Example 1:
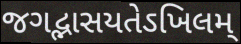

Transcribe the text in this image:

જગદ્ભાસયતેઽખિલમ્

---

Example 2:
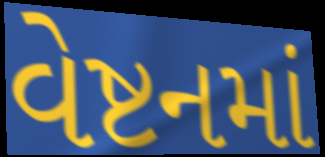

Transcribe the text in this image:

વેષ્ટનમાં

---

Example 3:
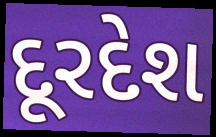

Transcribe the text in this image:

દૂરદેશ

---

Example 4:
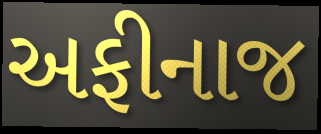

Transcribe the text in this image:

અફીનાજ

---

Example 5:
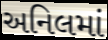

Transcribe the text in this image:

અનિલમાં